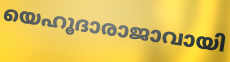
യെഹൂദാരാജാവായി